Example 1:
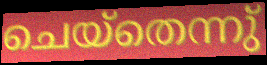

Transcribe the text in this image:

ചെയ്തെന്നു്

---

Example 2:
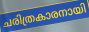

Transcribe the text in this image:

ചരിത്രകാരനായി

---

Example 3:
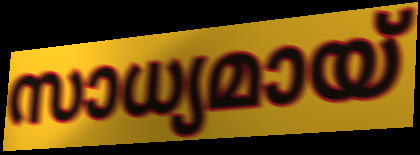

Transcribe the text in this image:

സാധ്യമായ്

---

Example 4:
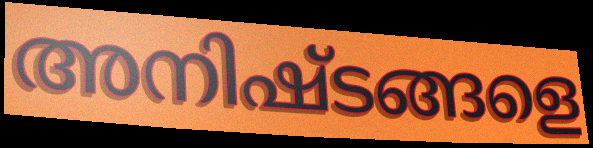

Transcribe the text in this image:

അനിഷ്ടങ്ങളെ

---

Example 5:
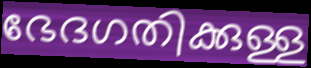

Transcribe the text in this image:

ഭേദഗതിക്കുള്ള